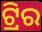
ଟ୍ରିର